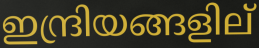
ഇന്ദ്രിയങ്ങളില്